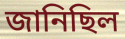
জানিছিল